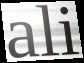
ali